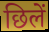
छिलें